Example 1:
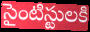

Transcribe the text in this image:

సైంటిస్టులకి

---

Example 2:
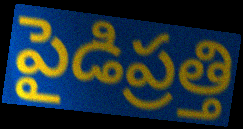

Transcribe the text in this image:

పైడిప్రత్తి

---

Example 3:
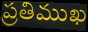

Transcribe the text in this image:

ప్రతిముఖ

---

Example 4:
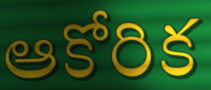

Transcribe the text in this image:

ఆకోరిక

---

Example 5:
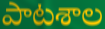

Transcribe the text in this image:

పాటశాల